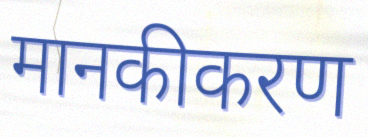
मानकीकरण